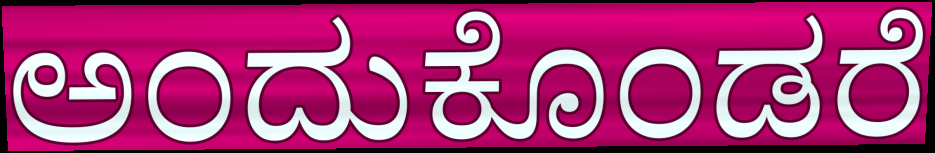
ಅಂದುಕೊಂಡರೆ